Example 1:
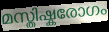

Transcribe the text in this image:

മസ്തിഷ്കരോഗം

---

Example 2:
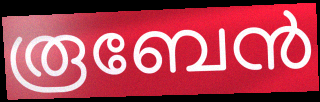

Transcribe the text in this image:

രൂബേൻ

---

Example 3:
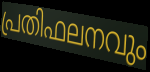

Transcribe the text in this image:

പ്രതിഫലനവും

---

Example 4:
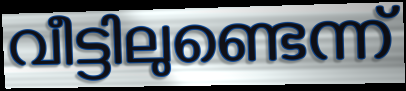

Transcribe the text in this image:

വീട്ടിലുണ്ടെന്ന്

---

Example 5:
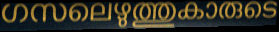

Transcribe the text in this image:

ഗസലെഴുത്തുകാരുടെ